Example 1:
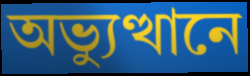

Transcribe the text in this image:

অভ্য়ুত্থানে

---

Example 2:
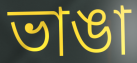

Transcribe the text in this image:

ভাঙা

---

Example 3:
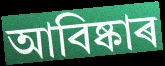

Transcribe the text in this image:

আবিষ্কাৰ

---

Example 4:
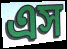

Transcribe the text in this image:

এস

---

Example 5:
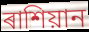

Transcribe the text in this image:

ৰাশিয়ান